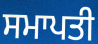
ਸਮਾਪਤੀ